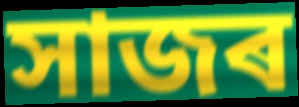
সাজৰ